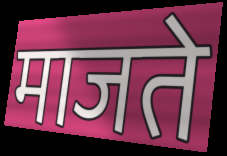
माजते